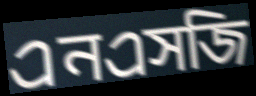
এনএসজি